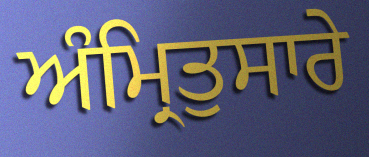
ਅੰਮ੍ਰਿਤੁਸਾਰੇ